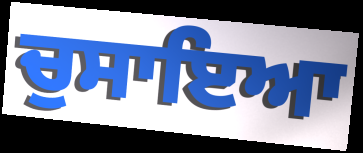
ਚੁਸਾਇਆ